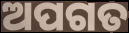
ଅପଗତ